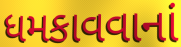
ધમકાવવાનાં